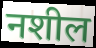
नशील